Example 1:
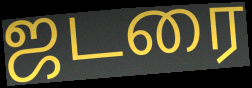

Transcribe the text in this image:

ஜடரை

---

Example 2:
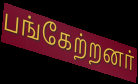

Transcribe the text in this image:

பங்கேற்றனர்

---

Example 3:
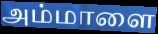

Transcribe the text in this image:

அம்மாளை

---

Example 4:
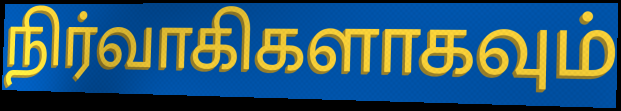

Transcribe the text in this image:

நிர்வாகிகளாகவும்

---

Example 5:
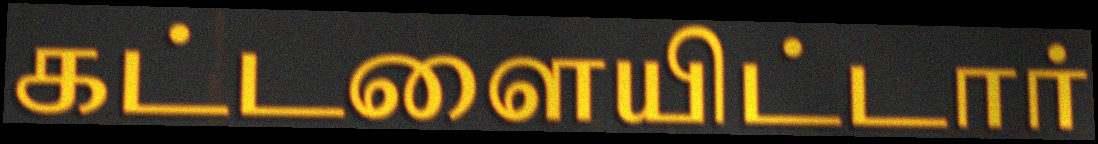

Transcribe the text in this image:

கட்டளையிட்டார்